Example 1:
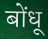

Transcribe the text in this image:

बोंधू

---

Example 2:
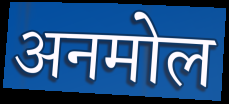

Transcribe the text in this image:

अनमोल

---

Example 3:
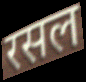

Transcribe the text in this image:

रसल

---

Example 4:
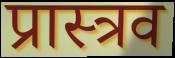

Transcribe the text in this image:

प्रास्त्रव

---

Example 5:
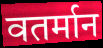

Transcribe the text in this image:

वतर्मान